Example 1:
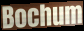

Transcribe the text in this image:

Bochum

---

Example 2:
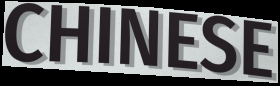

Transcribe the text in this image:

CHINESE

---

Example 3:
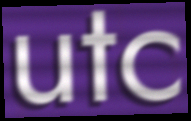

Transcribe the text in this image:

utc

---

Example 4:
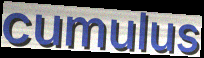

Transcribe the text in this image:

cumulus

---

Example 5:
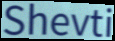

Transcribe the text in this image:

Shevti